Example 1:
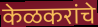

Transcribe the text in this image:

केळकरांचे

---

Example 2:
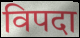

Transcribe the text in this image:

विपदा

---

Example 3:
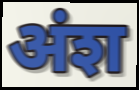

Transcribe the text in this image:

अंश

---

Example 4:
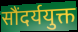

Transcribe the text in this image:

सौंदर्ययुक्त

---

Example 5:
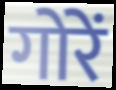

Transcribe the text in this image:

गोरें